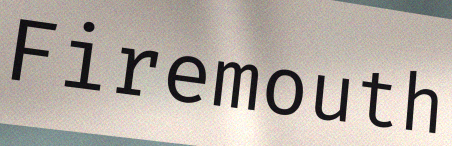
Firemouth